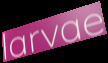
larvae